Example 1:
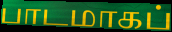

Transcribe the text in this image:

பாடமாகப்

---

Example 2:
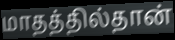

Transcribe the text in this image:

மாதத்தில்தான்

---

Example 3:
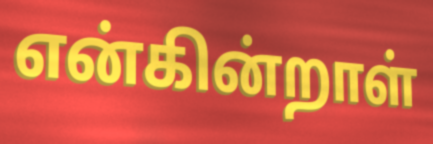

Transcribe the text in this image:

என்கின்றாள்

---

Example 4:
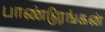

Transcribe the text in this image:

பாண்டுரங்கன்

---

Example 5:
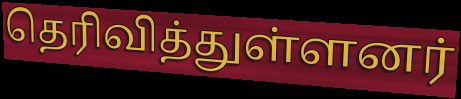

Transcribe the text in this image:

தெரிவித்துள்ளனர்